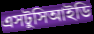
এসটুসিআইডি